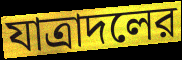
যাত্রাদলের